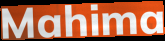
Mahima